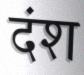
दंश